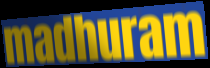
madhuram